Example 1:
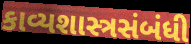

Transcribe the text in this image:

કાવ્યશાસ્ત્રસંબંધી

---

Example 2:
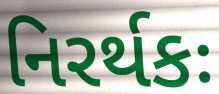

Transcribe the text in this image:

નિરર્થકઃ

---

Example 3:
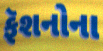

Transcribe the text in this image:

ફૅશનોના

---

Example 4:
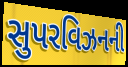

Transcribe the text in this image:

સુપરવિઝનની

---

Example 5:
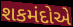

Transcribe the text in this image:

શકમંદોએ